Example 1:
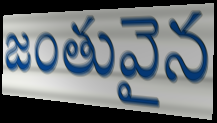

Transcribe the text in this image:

జంతువైన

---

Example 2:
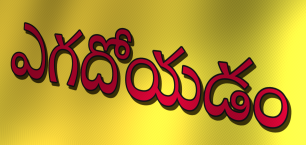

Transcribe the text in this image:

ఎగదోయడం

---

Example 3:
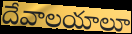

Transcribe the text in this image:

దేవాలయాలూ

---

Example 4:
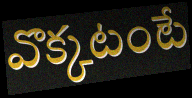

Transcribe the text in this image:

వొక్కటంటే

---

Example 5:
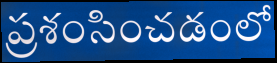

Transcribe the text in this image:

ప్రశంసించడంలో